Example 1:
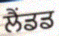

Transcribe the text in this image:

ਲੈਂਡਡ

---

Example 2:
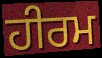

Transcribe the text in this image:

ਹੀਰਮ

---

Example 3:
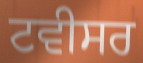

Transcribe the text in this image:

ਟਵੀਸਰ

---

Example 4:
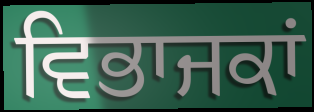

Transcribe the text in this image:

ਵਿਭਾਜਕਾਂ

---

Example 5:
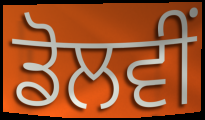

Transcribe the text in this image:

ਡੋਲਵੀਂ